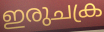
ഇരുചക്ര